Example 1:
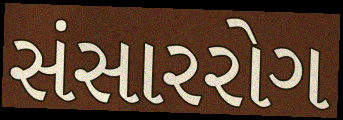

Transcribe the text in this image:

સંસારરોગ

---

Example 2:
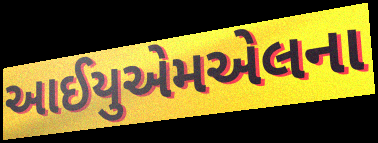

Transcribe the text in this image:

આઈયુએમએલના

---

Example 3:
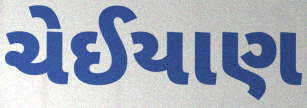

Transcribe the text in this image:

ચેઈયાણ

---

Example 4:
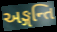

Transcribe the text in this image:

અઙ્ગન્તિ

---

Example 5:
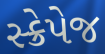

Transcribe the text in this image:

સ્ક્રેપેજ